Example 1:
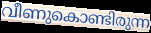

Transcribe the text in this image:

വീണുകൊണ്ടിരുന്ന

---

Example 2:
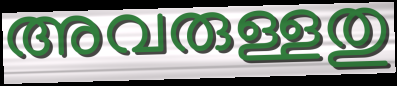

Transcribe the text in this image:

അവരുള്ളതു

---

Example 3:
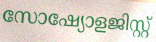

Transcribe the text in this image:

സോഷ്യോളജിസ്റ്റ്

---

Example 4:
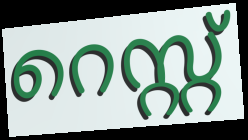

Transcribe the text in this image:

റെസ്റ്റ്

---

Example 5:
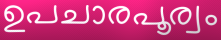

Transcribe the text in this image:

ഉപചാരപൂര്വം